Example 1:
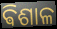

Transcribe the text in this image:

ଵିଶାଳ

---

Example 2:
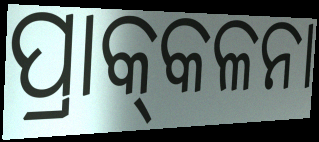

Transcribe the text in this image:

ପ୍ରାକ୍‌କଳନା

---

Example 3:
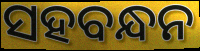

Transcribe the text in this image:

ସହବନ୍ଧନ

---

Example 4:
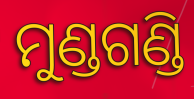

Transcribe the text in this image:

ମୁଣ୍ଡଗଣ୍ଡି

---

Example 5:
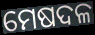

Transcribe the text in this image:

ମେଷଦଳ